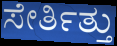
ಸೇರ್ತಿತ್ತು